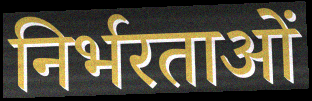
निर्भरताओं